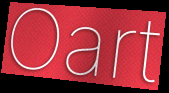
Oart